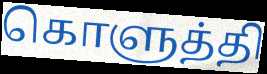
கொளுத்தி